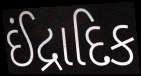
ઈંદ્રાદિક